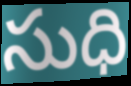
సుధి